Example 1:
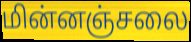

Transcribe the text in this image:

மின்னஞ்சலை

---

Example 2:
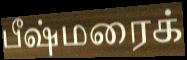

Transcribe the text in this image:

பீஷ்மரைக்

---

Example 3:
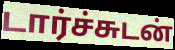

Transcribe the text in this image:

டார்ச்சுடன்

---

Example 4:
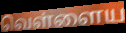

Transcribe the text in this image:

வெள்ளைய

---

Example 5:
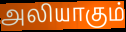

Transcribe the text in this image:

அலியாகும்